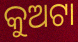
କୁଅଟା